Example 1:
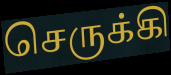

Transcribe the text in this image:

செருக்கி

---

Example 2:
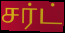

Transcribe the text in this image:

சர்ட்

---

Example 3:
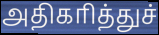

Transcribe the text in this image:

அதிகரித்துச்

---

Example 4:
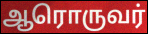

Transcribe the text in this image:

ஆரொருவர்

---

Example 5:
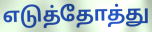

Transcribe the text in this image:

எடுத்தோத்து